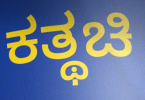
ಕತ್ಥಚಿ